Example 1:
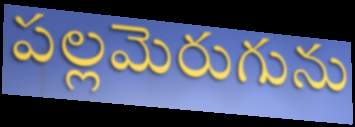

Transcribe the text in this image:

పల్లమెరుగును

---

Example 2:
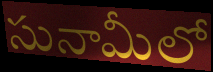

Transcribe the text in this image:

సునామీలో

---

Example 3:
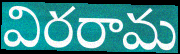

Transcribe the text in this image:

విరరామ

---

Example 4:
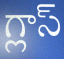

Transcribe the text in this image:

గ్లాస్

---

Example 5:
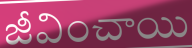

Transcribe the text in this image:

జీవించాయి